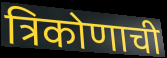
त्रिकोणाची